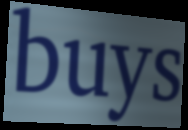
buys